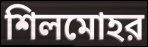
শিলমোহর